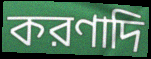
করণাদি